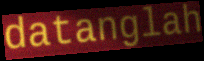
datanglah